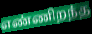
எண்ணிறந்த